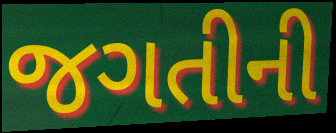
જગતીની